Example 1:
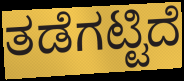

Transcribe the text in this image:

ತಡೆಗಟ್ಟಿದೆ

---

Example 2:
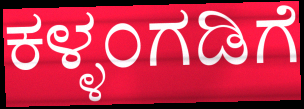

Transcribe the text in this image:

ಕಳ್ಳಂಗಡಿಗೆ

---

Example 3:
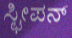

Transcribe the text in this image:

ಸ್ಟೀಪನ್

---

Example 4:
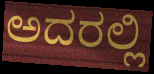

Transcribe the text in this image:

ಅದರಲ್ಲಿ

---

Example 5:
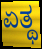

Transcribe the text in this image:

ಏತ್ಥ